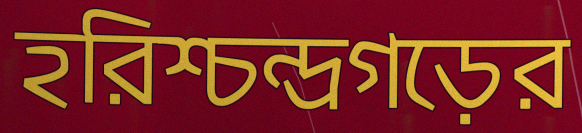
হরিশ্চন্দ্রগড়ের